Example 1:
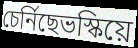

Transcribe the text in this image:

চেৰ্নিছেভস্কিয়ে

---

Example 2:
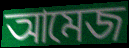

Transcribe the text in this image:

আমেজ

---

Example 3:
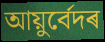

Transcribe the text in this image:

আয়ুৰ্বেদৰ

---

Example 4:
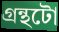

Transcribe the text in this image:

গ্ৰন্থটো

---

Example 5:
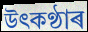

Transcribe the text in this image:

উৎকণ্ঠাৰ